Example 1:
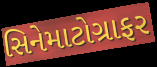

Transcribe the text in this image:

સિનેમાટોગ્રાફર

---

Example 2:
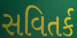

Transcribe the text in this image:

સવિતર્ક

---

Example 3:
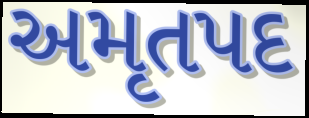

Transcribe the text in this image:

અમૃતપદ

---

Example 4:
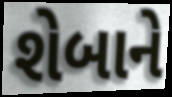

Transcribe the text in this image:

શેબાને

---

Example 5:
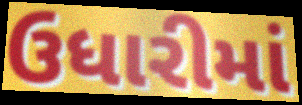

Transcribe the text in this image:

ઉધારીમાં